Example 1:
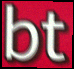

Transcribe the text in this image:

bt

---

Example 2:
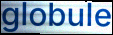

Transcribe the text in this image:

globule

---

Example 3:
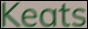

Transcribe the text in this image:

Keats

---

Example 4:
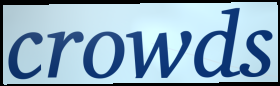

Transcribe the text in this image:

crowds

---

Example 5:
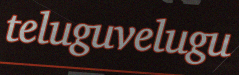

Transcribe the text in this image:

teluguvelugu